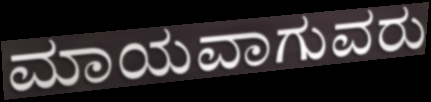
ಮಾಯವಾಗುವರು